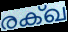
രക്ഖ